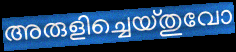
അരുളിച്ചെയ്തുവോ